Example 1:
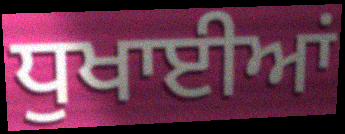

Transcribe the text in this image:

ਧੁਖਾਈਆਂ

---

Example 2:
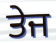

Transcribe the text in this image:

ਤੇਜ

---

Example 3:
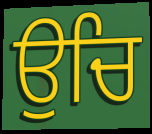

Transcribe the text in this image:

ਉਚਿ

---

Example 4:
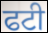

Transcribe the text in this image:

ਫਟੀ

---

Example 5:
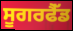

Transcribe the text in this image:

ਸੂਗਰਫੈੱਡ